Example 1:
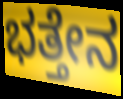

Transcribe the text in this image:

ಭತ್ತೇನ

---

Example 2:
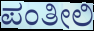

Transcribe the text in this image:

ಪಂತೀಲಿ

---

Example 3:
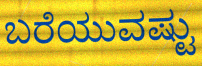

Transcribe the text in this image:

ಬರೆಯುವಷ್ಟು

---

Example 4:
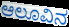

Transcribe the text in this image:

ಆಲೂವಿನ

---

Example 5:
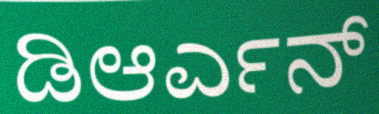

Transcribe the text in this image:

ಡಿಆರ್ಎನ್